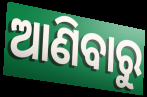
ଆଣିବାରୁ